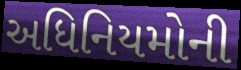
અધિનિયમોની